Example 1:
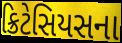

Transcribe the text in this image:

ક્રિટેસિયસના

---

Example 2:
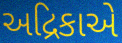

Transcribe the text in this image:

અદ્રિકાએ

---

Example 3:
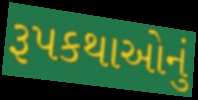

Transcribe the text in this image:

રૂપકથાઓનું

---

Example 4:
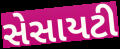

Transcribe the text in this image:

સેસાયટી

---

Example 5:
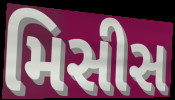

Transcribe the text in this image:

મિસીસ